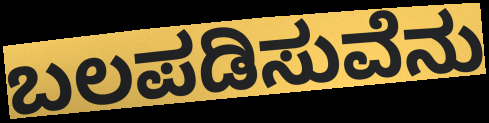
ಬಲಪಡಿಸುವೆನು